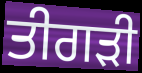
ਤੀਗੜੀ